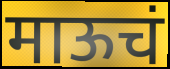
माऊचं